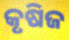
କୃଷିଜ